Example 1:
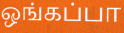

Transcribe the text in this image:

ஒங்கப்பா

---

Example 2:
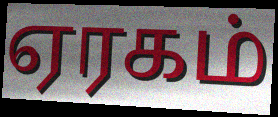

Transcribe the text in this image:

ஏரகம்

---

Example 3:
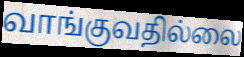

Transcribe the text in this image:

வாங்குவதில்லை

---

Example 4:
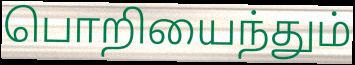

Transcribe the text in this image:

பொறியைந்தும்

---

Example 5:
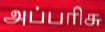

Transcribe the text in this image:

அப்பரிசு